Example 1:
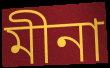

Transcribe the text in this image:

মীনা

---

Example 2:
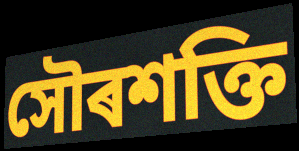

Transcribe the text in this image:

সৌৰশক্তি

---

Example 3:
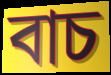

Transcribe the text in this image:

বাচ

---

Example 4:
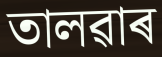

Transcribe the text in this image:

তালৱাৰ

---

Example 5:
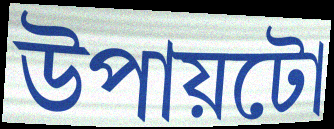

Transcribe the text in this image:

উপায়টো